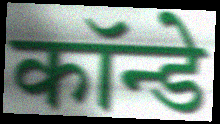
कॉन्डे